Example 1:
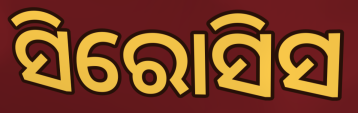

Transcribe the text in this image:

ସିରୋସିସ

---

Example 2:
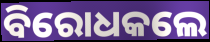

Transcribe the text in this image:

ବିରୋଧକଲେ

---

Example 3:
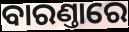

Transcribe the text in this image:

ବାରଣ୍ତାରେ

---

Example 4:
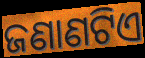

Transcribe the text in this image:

ଜଣାଣଟିଏ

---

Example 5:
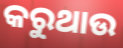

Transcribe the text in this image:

କରୁଥାଉ